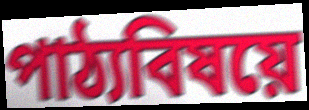
পাঠ্যবিষয়ে